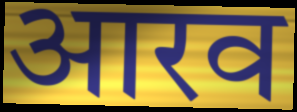
आरव